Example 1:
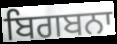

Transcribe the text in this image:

ਬਿਗਬਨਾ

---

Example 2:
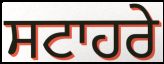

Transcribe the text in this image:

ਸਟਾਹਰੇ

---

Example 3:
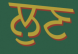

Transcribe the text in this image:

ਲੁਣ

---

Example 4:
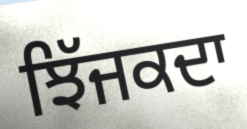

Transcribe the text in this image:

ਝਿੱਜਕਦਾ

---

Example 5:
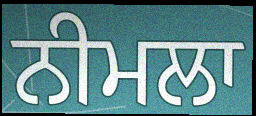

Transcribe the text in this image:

ਨੀਮਲਾ